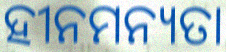
ହୀନମନ୍ୟତା